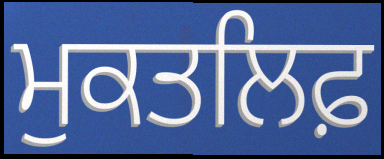
ਮੁਕਤਲਿਫ਼